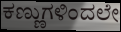
ಕಣ್ಣುಗಳಿಂದಲೇ